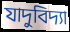
যাদুবিদ্যা